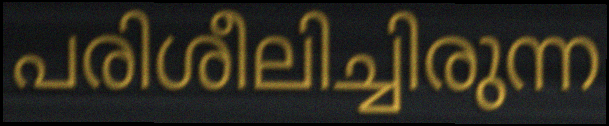
പരിശീലിച്ചിരുന്ന